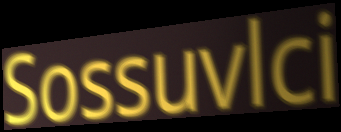
Sossuvlci